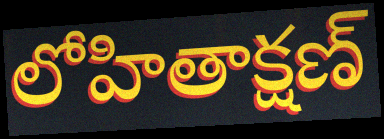
లోహితాక్షణ్